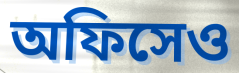
অফিসেও